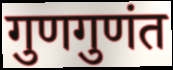
गुणगुणंत